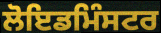
ਲੋਇਡਮਿੰਸਟਰ